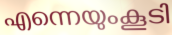
എന്നെയുംകൂടി